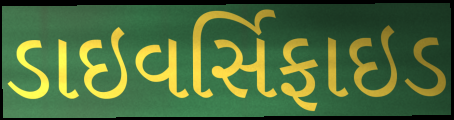
ડાઇવર્સિફાઇડ